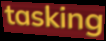
tasking